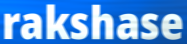
rakshase